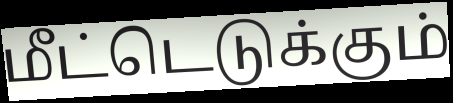
மீட்டெடுக்கும்